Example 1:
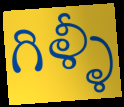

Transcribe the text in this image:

గిళ్ళీ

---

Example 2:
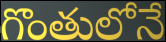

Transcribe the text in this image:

గొంతులోనే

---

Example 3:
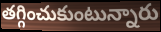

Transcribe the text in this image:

తగ్గించుకుంటున్నారు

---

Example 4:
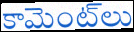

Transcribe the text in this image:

కామెంట్‌లు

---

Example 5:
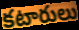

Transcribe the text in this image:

కటారులు